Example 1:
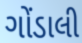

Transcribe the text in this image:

ગોંડાલી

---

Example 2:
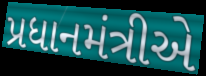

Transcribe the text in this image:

પ્રધાનમંત્રીએ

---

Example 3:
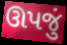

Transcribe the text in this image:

ઊપજું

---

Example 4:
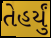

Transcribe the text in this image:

તેહર્યું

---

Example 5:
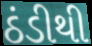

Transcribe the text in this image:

ઠંડીથી